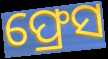
ଫ୍ରେସ